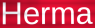
Herma